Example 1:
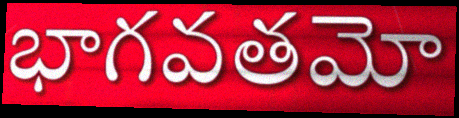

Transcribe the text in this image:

భాగవతమో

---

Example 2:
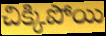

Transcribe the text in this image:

చిక్కిపోయి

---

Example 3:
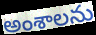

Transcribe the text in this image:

అంశాలను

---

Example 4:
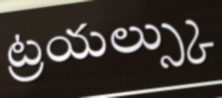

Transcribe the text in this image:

ట్రయల్స్కు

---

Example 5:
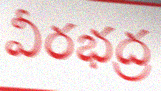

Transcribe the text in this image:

వీరభద్ర